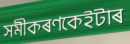
সমীকৰণকেইটাৰ